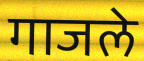
गाजले